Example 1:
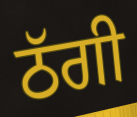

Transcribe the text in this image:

ਠੱਗੀ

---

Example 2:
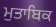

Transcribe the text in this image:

ਮੁਤਾਬਿਕ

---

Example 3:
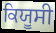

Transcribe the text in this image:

ਕਿਯੂਸੀ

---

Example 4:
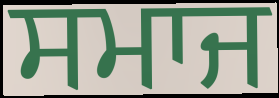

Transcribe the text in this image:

ਸਮਾਜ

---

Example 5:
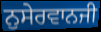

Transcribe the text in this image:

ਨੁਸੇਰਵਾਨਜੀ